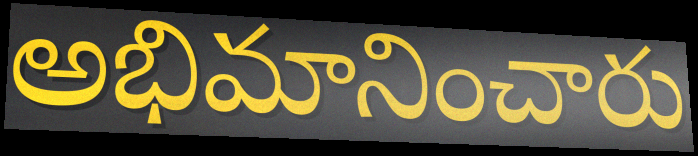
అభిమానించారు